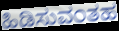
ಹಿಡಿಸುವಂತಹ